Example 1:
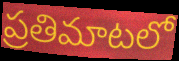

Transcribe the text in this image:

ప్రతిమాటలో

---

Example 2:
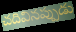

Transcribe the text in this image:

చదివినప్పుడు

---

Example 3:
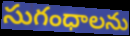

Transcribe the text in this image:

సుగంధాలను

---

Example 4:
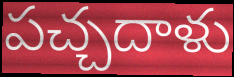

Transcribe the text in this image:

పచ్చదాళు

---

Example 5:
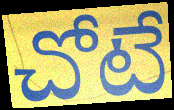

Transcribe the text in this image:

చోటే